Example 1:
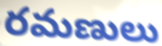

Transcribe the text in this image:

రమణులు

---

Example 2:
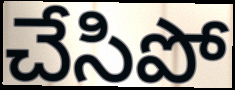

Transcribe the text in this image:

చేసిపో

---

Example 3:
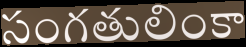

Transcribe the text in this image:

సంగతులింకా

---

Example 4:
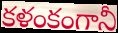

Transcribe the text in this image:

కళంకంగానీ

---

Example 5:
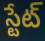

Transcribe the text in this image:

స్టేట్